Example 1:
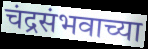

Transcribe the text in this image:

चंद्रसंभवाच्या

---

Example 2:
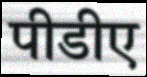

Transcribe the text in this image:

पीडीए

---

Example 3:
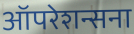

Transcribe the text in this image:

ऑपरेशन्सना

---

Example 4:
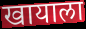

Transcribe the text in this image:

खायाला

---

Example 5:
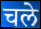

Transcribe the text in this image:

चले